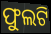
ଫୁଲଟି